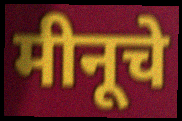
मीनूचे